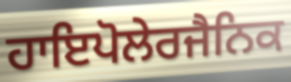
ਹਾਇਪੋਲੇਰਜੈਨਿਕ